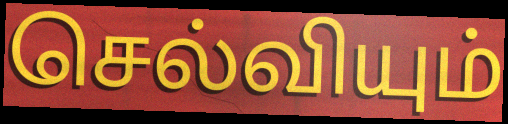
செல்வியும்